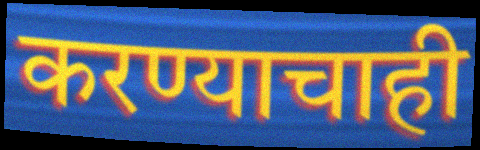
करण्याचाही